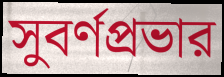
সুবর্ণপ্রভার